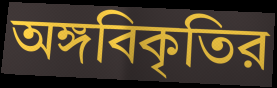
অঙ্গবিকৃতির